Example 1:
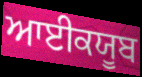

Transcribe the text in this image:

ਆਈਕਯੂਬ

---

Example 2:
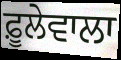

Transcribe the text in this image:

ਫ਼ੂਲੇਵਾਲਾ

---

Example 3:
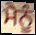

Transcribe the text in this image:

ਮੈਨੂੰ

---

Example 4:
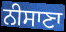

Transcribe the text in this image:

ਨੀਸਾਣਾ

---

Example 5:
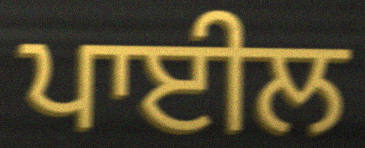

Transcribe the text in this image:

ਪਾਈਲ